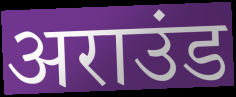
अराउंड